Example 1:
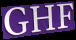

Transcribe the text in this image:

GHF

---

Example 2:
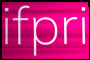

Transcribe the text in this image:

ifpri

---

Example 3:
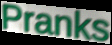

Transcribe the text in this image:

Pranks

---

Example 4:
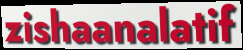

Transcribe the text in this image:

zishaanalatif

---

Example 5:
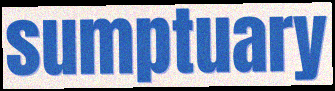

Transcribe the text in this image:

sumptuary